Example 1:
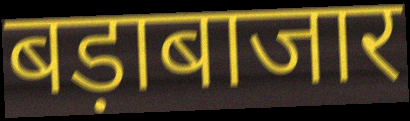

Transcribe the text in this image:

बड़ाबाजार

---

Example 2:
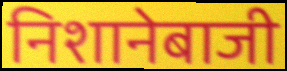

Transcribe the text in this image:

निशानेबाजी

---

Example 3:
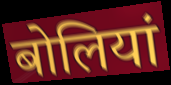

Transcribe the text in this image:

बोलियां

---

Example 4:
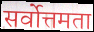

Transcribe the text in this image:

सर्वोत्तमता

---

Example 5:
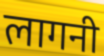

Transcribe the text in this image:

लागनी